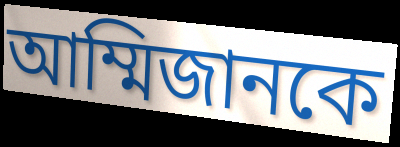
আম্মিজানকে